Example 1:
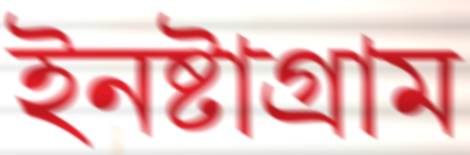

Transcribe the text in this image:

ইনষ্টাগ্ৰাম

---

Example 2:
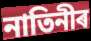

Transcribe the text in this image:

নাতিনীৰ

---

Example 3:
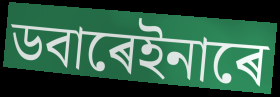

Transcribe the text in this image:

ডবাৰেইনাৰে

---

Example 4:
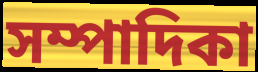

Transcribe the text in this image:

সম্পাদিকা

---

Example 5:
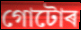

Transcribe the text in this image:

গোটোৰ